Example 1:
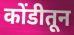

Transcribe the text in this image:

कोंडीतून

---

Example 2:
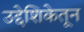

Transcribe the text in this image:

उद्देशिकेतून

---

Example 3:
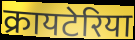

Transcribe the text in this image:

क्रायटेरिया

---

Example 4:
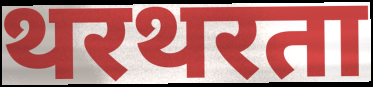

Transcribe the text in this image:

थरथरता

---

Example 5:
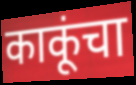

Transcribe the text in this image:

काकूंचा